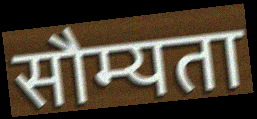
सौम्यता